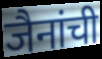
जैनांची